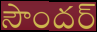
సౌందర్